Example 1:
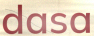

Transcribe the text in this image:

dasa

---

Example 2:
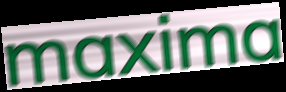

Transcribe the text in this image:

maxima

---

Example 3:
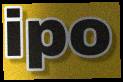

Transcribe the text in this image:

ipo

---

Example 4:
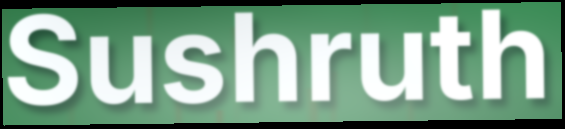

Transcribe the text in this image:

Sushruth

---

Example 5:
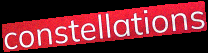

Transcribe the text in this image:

constellations